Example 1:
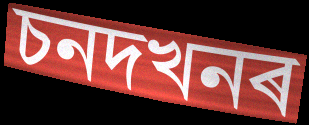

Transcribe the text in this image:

চনদখনৰ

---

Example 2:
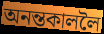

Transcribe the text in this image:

অনন্তকাললৈ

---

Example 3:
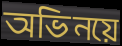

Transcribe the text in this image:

অভিনয়ে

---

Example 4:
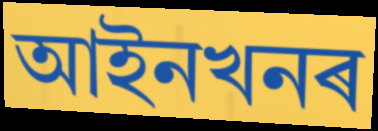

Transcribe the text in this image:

আইনখনৰ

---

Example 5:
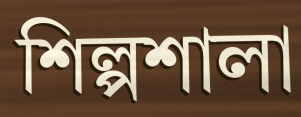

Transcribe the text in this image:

শিল্পশালা